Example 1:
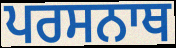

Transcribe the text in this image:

ਪਰਸਨਾਥ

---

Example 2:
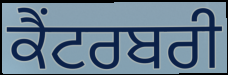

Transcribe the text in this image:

ਕੈਂਟਰਬਰੀ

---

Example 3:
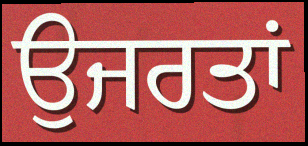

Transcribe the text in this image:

ਉਜਰਤਾਂ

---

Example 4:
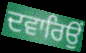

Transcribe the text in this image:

ਦਵਾਰਿਉਂ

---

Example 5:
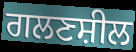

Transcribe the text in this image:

ਗਲਣਸ਼ੀਲ